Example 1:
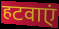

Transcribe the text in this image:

हटवाएं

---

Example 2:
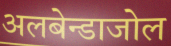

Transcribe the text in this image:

अलबेन्डाजोल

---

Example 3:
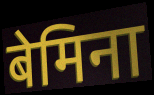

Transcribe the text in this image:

बेमिना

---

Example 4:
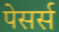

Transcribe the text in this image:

पेसर्स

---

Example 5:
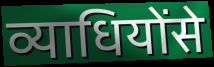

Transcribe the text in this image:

व्याधियोंसे